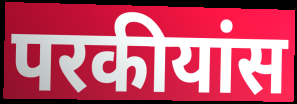
परकीयांस